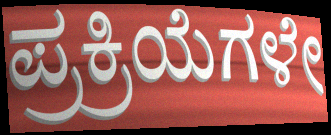
ಪ್ರಕ್ರಿಯೆಗಳೇ